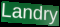
Landry